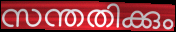
സന്തതിക്കും